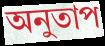
অনুতাপ